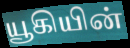
யூகியின்